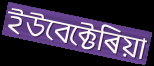
ইউবেক্টেৰিয়া